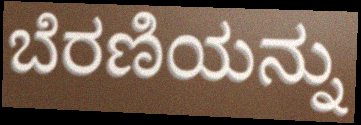
ಬೆರಣಿಯನ್ನು